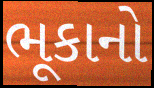
ભૂકાનો